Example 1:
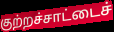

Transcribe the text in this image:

குற்றச்சாட்டைச்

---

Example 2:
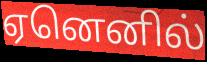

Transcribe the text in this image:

ஏனெனில்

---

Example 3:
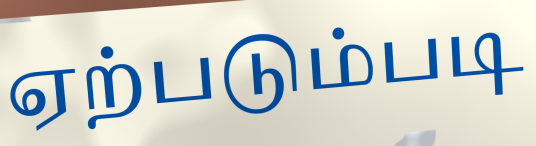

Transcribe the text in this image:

ஏற்படும்படி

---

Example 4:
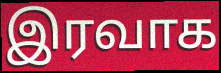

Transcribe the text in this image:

இரவாக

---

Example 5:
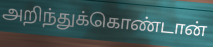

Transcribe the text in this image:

அறிந்துக்கொண்டான்